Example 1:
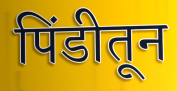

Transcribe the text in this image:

पिंडीतून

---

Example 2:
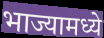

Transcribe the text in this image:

भाज्यामध्ये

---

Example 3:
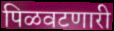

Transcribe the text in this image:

पिळवटणारी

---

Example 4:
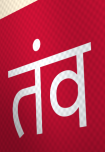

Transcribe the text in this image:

तंव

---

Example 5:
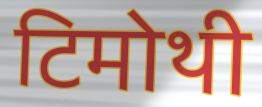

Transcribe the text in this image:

टिमोथी